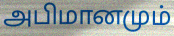
அபிமானமும்